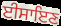
ਈਸਾਇਣ